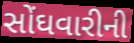
સોંઘવારીની